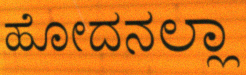
ಹೋದನಲ್ಲಾ